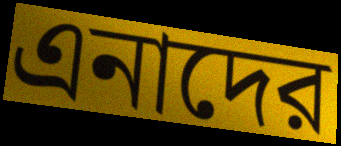
এনাদের